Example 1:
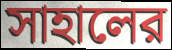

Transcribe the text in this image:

সাহালের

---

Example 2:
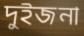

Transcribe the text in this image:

দুইজনা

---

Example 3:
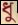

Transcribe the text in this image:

ধু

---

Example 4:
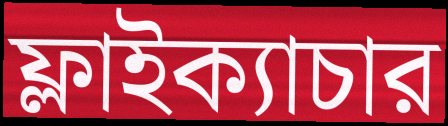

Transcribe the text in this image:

ফ্লাইক্যাচার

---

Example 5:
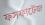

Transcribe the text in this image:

ফসফাটেজ